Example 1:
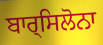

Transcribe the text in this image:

ਬਾਰ੍ਸਿਲੋਨਾ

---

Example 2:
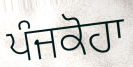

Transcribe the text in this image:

ਪੰਜਕੋਹਾ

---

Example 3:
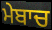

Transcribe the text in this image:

ਮੇਬਾਚ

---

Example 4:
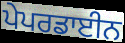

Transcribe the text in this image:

ਪੇਪਰਡਾਈਨ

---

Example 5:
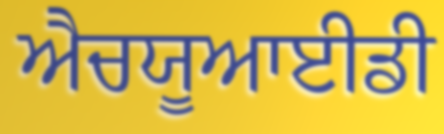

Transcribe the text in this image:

ਐਚਯੂਆਈਡੀ